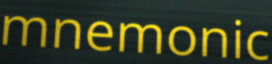
mnemonic